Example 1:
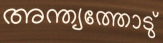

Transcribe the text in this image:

അന്ത്യത്തോടു്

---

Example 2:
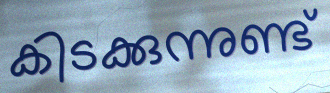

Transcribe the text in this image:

കിടക്കുന്നുണ്ട്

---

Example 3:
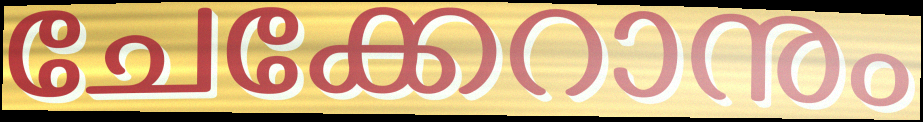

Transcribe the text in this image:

ചേക്കേറാനും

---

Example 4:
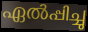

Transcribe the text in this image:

ഏൽപ്പിച്ചു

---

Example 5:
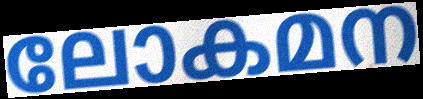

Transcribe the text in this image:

ലോകമന